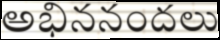
అభిననందలు